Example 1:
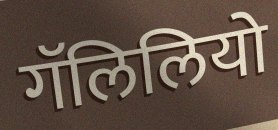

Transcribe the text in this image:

गॅलिलियो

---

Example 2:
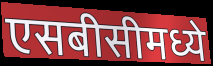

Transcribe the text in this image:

एसबीसीमध्ये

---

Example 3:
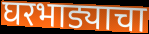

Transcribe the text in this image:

घरभाड्याचा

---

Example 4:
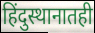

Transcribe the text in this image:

हिंदुस्थानातही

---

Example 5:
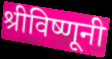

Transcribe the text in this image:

श्रीविष्णूनी